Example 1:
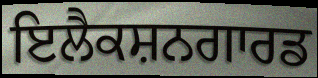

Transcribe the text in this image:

ਇਲੈਕਸ਼ਨਗਾਰਡ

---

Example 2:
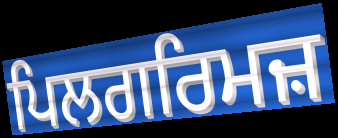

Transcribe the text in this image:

ਪਿਲਗਰਿਮਜ਼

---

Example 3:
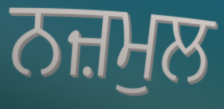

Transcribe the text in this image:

ਨਜ਼ਮੁਲ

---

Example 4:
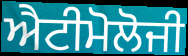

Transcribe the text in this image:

ਐਟੀਮੋਲੋਜੀ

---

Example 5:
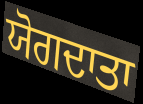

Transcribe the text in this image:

ਯੋਗਦਾਤਾ